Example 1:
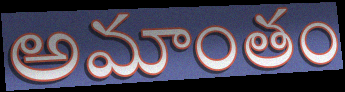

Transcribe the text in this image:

అమాంతం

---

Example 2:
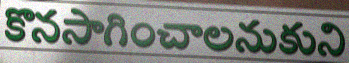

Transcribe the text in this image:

కొనసాగించాలనుకుని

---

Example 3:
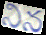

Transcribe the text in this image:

నిన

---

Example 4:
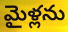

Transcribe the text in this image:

మైళ్లను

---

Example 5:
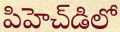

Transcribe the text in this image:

పిహెచ్‌డిలో